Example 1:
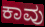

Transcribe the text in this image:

ಕಾವು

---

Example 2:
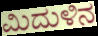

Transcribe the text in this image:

ಮಿದುಳಿನ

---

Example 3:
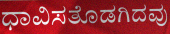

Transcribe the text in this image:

ಧಾವಿಸತೊಡಗಿದವು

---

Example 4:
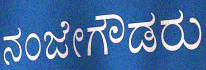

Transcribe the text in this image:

ನಂಜೇಗೌಡರು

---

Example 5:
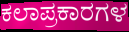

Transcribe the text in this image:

ಕಲಾಪ್ರಕಾರಗಳ